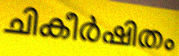
ചികീർഷിതം